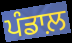
ਪੰਡਾਲ਼